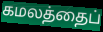
கமலத்தைப்